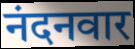
नंदनवार